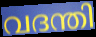
വദന്തി